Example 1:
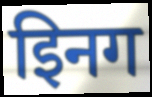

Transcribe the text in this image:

इिनग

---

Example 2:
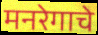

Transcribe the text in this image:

मनरेगाचे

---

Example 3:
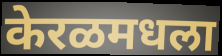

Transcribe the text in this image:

केरळमधला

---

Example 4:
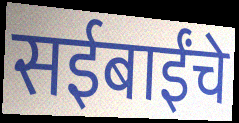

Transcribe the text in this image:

सईबाईंचे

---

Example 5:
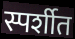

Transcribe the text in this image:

स्पर्शीत